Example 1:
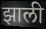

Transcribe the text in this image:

झाली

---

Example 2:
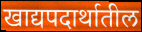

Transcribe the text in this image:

खाद्यपदार्थातील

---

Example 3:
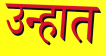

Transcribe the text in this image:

उन्हात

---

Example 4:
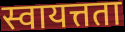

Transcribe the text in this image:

स्वायत्तता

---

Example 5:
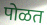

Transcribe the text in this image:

पोळत